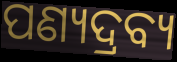
ପଣ୍ୟଦ୍ରବ୍ୟ